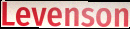
Levenson